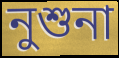
নুশুনা